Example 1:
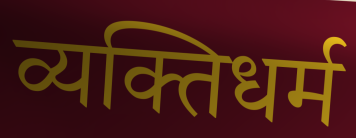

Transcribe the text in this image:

व्यक्तिधर्म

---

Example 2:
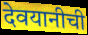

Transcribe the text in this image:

देवयानीची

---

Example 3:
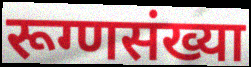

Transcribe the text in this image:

रूग्णसंख्या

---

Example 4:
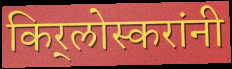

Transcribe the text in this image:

किर्लोस्करांनी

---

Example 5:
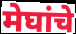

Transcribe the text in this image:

मेघांचे